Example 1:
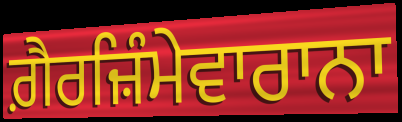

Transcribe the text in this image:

ਗ਼ੈਰਜ਼ਿੰਮੇਵਾਰਾਨਾ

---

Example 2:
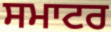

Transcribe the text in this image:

ਸਮਾਟਰ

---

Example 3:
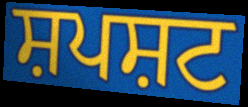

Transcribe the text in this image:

ਸ਼ਪਸ਼ਟ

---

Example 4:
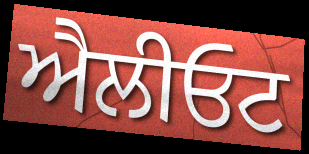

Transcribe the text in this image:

ਐਲੀਓਟ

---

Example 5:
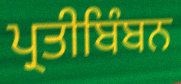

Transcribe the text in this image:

ਪ੍ਰਤੀਬਿੰਬਨ